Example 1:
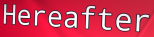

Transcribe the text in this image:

Hereafter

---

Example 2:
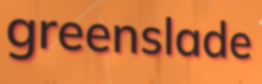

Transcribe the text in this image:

greenslade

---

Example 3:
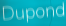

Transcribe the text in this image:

Dupond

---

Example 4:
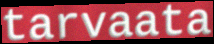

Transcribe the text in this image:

tarvaata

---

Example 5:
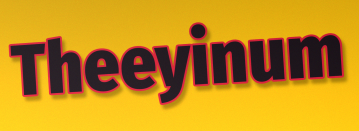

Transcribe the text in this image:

Theeyinum